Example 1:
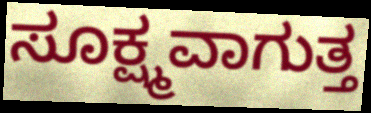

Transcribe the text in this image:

ಸೂಕ್ಷ್ಮವಾಗುತ್ತ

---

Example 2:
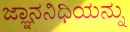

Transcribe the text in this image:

ಜ್ಞಾನನಿಧಿಯನ್ನು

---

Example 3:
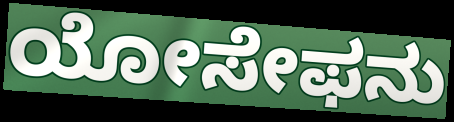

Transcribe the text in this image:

ಯೋಸೇಫನು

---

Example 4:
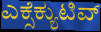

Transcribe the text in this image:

ಎಕ್ಸೆಕ್ಯುಟಿವ್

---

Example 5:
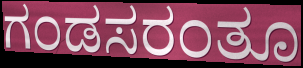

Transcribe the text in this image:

ಗಂಡಸರಂತೂ